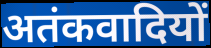
अतंकवादियों